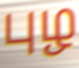
புழ